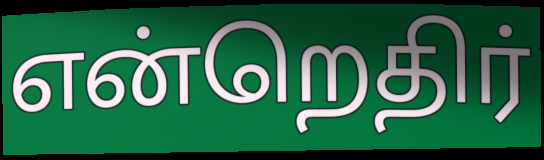
என்றெதிர்